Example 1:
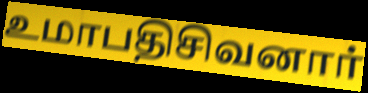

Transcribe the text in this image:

உமாபதிசிவனார்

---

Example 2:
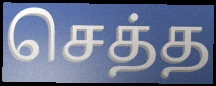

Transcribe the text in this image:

செத்த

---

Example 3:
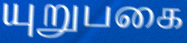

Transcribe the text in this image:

யுறுபகை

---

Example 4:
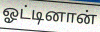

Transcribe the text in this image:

ஓட்டினான்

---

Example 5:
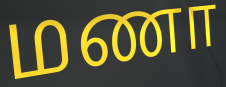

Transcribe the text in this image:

மணா